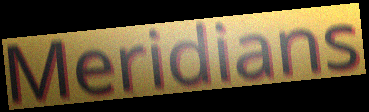
Meridians